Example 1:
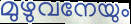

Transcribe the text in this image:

മുഴുവനേയും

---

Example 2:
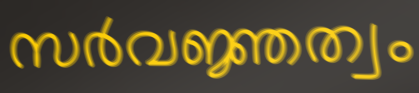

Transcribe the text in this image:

സർവജ്ഞത്വം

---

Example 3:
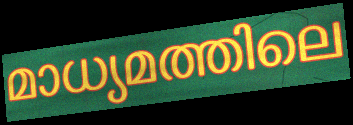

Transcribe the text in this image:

മാധ്യമത്തിലെ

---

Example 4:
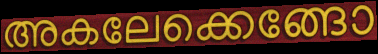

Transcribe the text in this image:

അകലേക്കെങ്ങോ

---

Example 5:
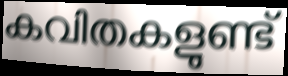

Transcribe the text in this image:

കവിതകളുണ്ട്